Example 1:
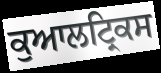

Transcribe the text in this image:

ਕੁਆਲਟ੍ਰਿਕਸ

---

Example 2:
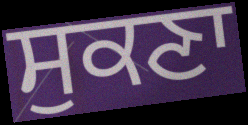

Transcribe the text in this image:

ਸੁਕਣਾ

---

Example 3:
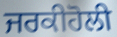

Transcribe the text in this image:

ਜਰਕੀਹੋਲੀ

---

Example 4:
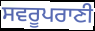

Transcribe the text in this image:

ਸਵਰੂਪਰਾਣੀ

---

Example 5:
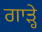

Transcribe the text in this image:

ਗਾੜ੍ਹੇ